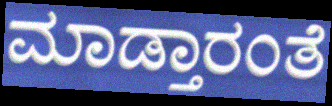
ಮಾಡ್ತಾರಂತೆ